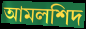
আমলশিদ